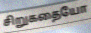
சிறுகதையோ